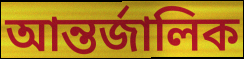
আন্তর্জালিক